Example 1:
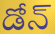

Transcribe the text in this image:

డోన్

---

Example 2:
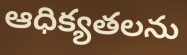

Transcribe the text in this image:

ఆధిక్యతలను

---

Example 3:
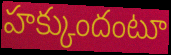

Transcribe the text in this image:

హక్కుందంటూ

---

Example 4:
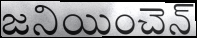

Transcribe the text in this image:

జనియించెన్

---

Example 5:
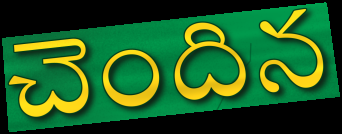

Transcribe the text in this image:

చెందిన